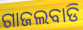
ଗାଜଲବାଡି